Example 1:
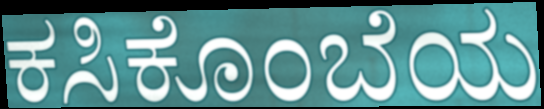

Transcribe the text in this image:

ಕಸಿಕೊಂಬೆಯ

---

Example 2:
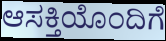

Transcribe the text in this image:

ಆಸಕ್ತಿಯೊಂದಿಗೆ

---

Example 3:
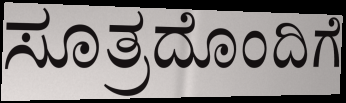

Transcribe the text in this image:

ಸೂತ್ರದೊಂದಿಗೆ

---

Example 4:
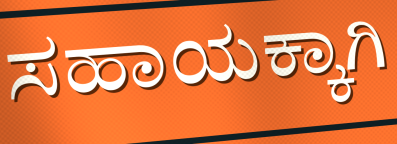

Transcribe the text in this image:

ಸಹಾಯಕ್ಕಾಗಿ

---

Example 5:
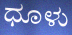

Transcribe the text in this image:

ಧೂಳು